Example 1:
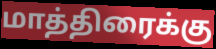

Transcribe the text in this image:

மாத்திரைக்கு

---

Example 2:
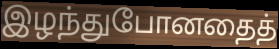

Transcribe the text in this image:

இழந்துபோனதைத்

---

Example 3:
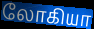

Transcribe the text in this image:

லோகியா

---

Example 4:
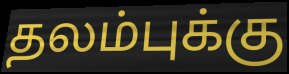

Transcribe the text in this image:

தலம்புக்கு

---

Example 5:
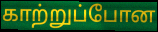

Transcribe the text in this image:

காற்றுப்போன